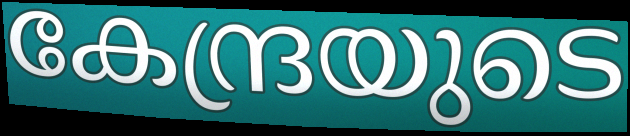
കേന്ദ്രയുടെ